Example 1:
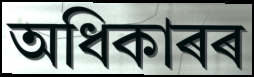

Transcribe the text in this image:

অধিকাৰৰ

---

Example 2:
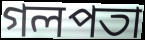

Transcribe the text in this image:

গলপতা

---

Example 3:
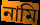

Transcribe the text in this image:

নামি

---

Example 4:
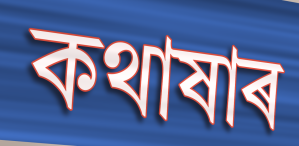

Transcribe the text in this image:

কথাষাৰ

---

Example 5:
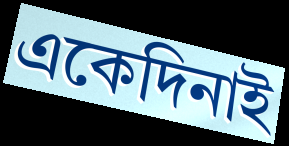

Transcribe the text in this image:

একেদিনাই